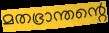
മതഭ്രാന്തന്റെ